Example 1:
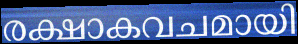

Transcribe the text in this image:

രക്ഷാകവചമായി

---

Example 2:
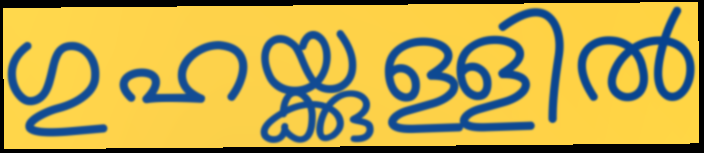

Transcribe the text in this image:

ഗുഹയ്ക്കുള്ളിൽ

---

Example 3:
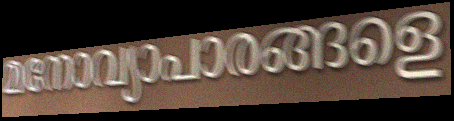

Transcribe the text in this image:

മനോവ്യാപാരങ്ങളെ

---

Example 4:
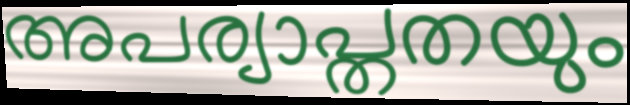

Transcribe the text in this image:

അപര്യാപ്തതയും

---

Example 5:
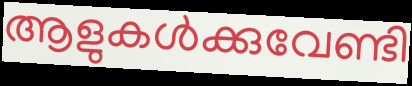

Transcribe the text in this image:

ആളുകൾക്കുവേണ്ടി